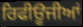
ਰਿਫੀਊਜੀਆਂ